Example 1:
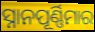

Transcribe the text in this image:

ସ୍ନାନପୂର୍ଣ୍ଣିମାର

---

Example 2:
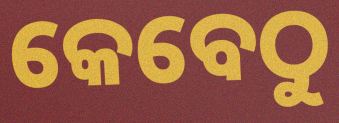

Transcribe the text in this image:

କେବେଠୁ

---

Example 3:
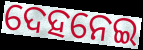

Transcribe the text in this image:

ଦେହନେଇ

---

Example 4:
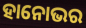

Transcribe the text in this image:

ହାନୋଭର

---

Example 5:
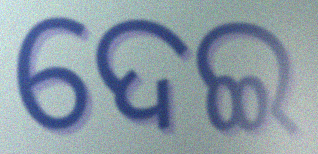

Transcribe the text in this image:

ଦେଇ